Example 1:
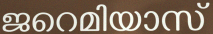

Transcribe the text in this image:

ജറെമിയാസ്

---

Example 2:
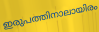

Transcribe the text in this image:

ഇരുപത്തിനാലായിരം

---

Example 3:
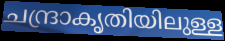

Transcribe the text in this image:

ചന്ദ്രാകൃതിയിലുള്ള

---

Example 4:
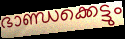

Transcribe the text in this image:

ഭാണ്ഡക്കെട്ടും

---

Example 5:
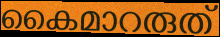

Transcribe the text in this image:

കൈമാറരുത്